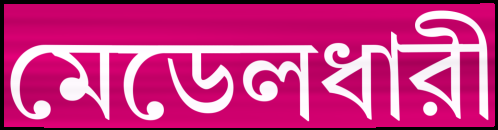
মেডেলধারী